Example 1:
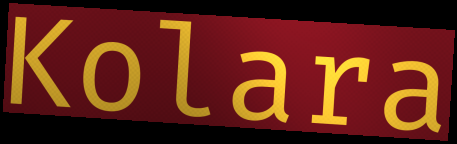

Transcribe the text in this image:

Kolara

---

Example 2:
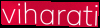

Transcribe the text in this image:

viharati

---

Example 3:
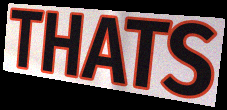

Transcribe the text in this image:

THATS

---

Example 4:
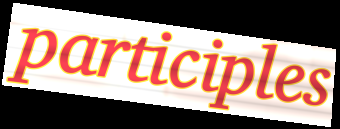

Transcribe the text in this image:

participles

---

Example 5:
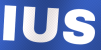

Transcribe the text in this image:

IUS